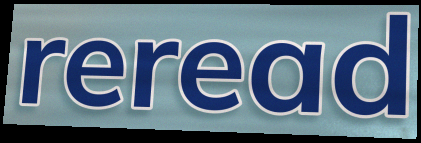
reread